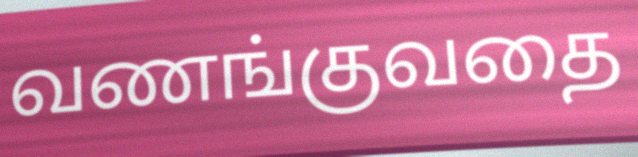
வணங்குவதை